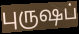
புருஷப்